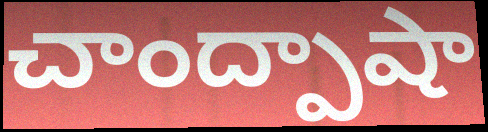
చాంద్పాషా